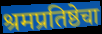
श्रमप्रतिष्ठेचा